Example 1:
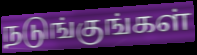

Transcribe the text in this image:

நடுங்குங்கள்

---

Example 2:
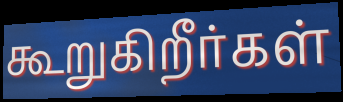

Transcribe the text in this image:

கூறுகிறீர்கள்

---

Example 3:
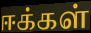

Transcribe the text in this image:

ஈக்கள்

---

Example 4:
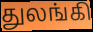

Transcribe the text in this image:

துலங்கி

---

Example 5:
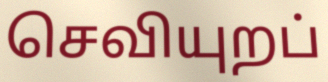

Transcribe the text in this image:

செவியுறப்